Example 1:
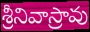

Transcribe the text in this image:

శ్రీనివాస్రావు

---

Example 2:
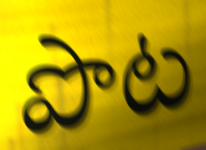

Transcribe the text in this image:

పొట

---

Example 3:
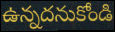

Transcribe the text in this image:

ఉన్నదనుకోండి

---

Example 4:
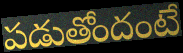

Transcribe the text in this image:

పడుతోందంటే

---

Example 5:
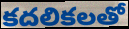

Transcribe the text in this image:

కదలికలతో